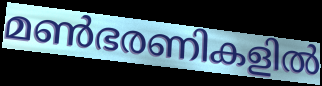
മൺഭരണികളിൽ